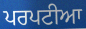
ਪਰਪਟੀਆ